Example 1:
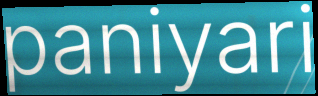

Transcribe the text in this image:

paniyari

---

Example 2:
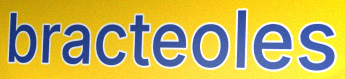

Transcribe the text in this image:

bracteoles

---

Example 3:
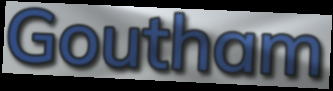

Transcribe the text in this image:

Goutham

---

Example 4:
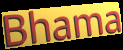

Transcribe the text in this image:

Bhama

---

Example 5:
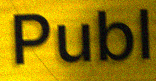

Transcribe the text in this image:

Publ